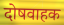
दोषवाहक